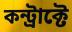
কন্ট্রাক্টে